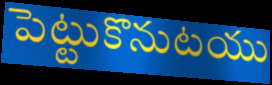
పెట్టుకొనుటయు